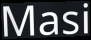
Masi